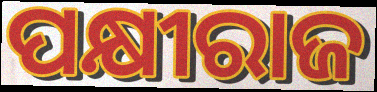
ପକ୍ଷୀରାଜ